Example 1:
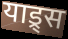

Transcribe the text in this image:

याड्र्स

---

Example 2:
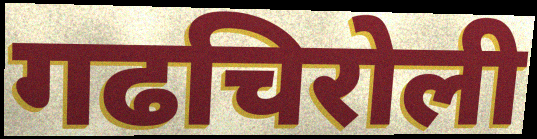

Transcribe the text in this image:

गढचिरोली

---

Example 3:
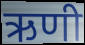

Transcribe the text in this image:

ऋणी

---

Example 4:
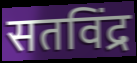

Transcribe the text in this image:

सतविंद्र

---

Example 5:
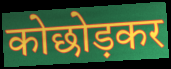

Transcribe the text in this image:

कोछोड़कर